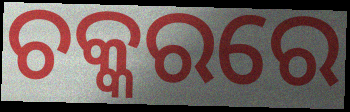
ଚକ୍କରରେ